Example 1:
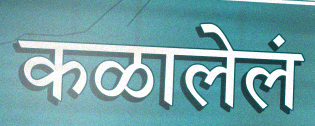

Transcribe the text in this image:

कळालेलं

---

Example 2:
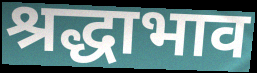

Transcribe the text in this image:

श्रद्धाभाव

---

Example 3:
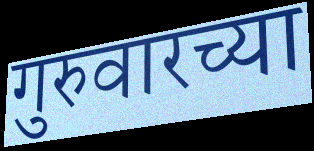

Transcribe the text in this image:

गुरुवारच्या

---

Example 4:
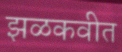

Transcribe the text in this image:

झळकवीत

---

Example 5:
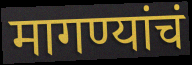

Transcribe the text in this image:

मागण्यांचं